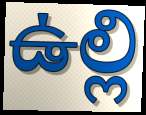
ఉల్లి